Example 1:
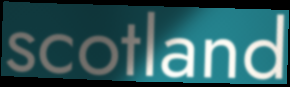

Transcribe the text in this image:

scotland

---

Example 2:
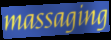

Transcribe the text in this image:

massaging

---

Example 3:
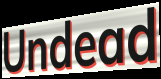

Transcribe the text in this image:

Undead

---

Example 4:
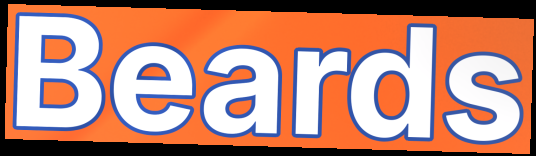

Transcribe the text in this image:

Beards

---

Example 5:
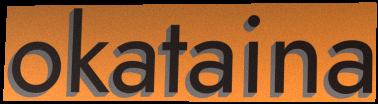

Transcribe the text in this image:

okataina